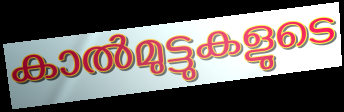
കാൽമുട്ടുകളുടെ